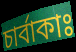
চার্বাকাঃ